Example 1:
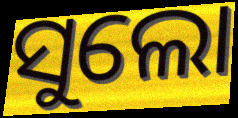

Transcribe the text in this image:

ସୁଲୋ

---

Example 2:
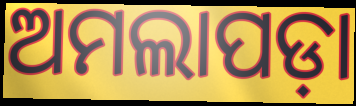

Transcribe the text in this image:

ଅମଲାପଡ଼ା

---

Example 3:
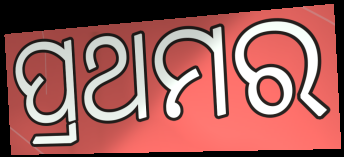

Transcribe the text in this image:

ପ୍ରଥମର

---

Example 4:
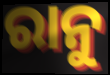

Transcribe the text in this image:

ରାନୁ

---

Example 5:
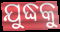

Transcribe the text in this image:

ଯୁଦ୍ଧକୁ